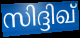
സിദ്ദിഖ്